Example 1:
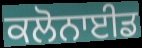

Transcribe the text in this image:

ਕਲੋਨਾਈਡ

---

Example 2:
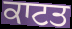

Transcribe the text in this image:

ਕਾਟਤ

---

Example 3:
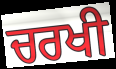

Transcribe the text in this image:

ਚਰਖੀ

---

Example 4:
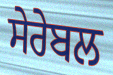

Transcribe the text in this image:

ਸੇਰੇਬਲ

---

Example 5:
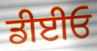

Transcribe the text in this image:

ਡੀਈਓ